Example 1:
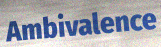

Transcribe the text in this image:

Ambivalence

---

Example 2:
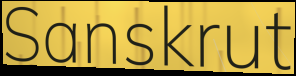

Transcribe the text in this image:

Sanskrut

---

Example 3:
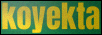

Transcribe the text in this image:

koyekta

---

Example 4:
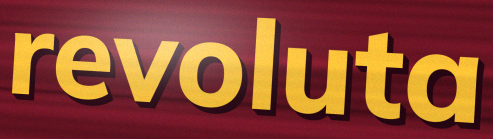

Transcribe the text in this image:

revoluta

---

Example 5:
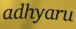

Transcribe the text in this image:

adhyaru